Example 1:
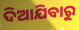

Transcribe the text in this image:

ଦିଆଯିବାରୁ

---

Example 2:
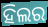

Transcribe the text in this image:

ହିଲର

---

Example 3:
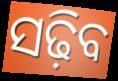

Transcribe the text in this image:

ସଢ଼ିବ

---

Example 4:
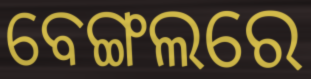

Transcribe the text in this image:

ବେଙ୍ଗଲରେ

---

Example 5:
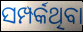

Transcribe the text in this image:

ସମ୍ପର୍କଥିବା